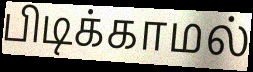
பிடிக்காமல்